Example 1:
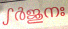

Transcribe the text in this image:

ഽർജുനഃ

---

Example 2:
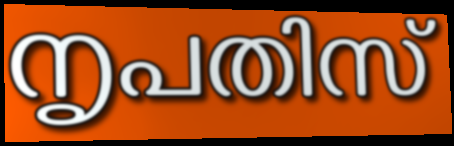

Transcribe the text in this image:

നൃപതിസ്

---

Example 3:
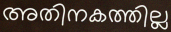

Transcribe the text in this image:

അതിനകത്തില്ല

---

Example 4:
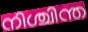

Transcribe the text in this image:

നിശ്ചിന്ത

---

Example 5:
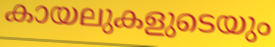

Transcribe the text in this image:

കായലുകളുടെയും